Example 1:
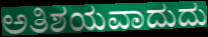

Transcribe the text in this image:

ಅತಿಶಯವಾದುದು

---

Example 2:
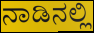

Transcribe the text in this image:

ನಾಡಿನಲ್ಲಿ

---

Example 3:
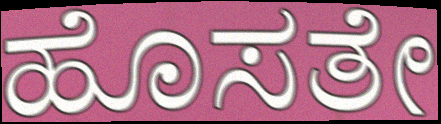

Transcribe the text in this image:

ಹೊಸತೇ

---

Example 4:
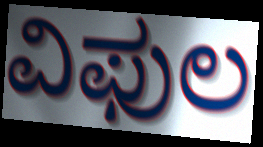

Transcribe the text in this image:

ವಿಫುಲ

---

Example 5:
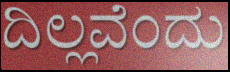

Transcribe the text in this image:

ದಿಲ್ಲವೆಂದು